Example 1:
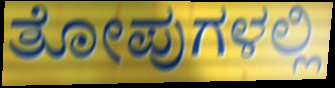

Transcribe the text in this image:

ತೋಪುಗಳಲ್ಲಿ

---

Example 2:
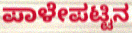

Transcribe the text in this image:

ಪಾಳೇಪಟ್ಟಿನ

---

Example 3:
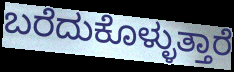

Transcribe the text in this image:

ಬರೆದುಕೊಳ್ಳುತ್ತಾರೆ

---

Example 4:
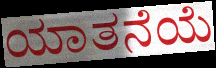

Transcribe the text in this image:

ಯಾತನೆಯೆ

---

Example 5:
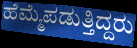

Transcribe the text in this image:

ಹೆಮ್ಮೆಪಡುತ್ತಿದ್ದರು